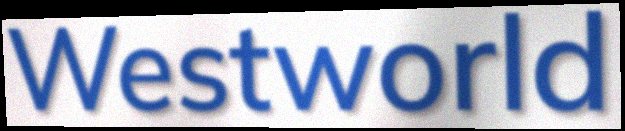
Westworld